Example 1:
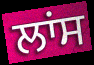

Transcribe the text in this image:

ਲਾਂਸ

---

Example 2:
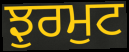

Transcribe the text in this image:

ਝੁਰਮੁਟ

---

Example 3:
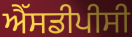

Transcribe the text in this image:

ਐੱਸਡੀਪੀਸੀ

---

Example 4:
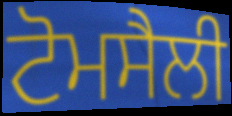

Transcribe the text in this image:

ਟੋਮਸੈਲੀ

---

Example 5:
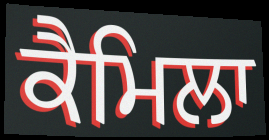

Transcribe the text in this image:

ਕੈਮਿਲਾ